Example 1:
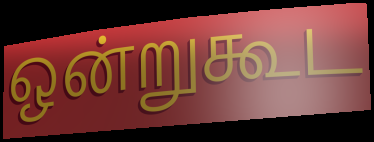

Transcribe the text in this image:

ஒன்றுகூட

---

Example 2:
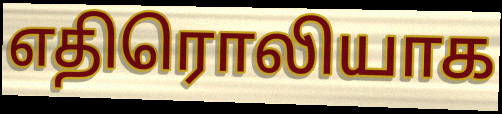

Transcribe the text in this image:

எதிரொலியாக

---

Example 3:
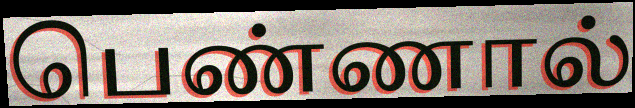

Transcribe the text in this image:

பெண்ணால்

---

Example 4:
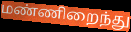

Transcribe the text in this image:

மண்ணிறைந்து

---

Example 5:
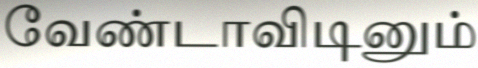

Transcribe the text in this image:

வேண்டாவிடினும்